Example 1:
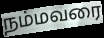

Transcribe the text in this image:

நம்மவரை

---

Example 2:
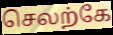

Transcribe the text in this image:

செலற்கே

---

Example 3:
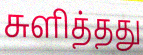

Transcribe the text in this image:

சுளித்தது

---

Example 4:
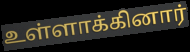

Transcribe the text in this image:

உள்ளாக்கினார்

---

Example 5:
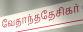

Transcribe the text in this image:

வேதாந்ததேசிகர்